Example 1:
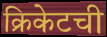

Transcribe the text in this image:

क्रिकेटची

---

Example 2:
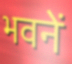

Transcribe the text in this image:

भवनें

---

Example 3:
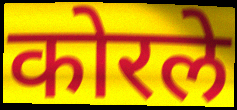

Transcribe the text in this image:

कोरले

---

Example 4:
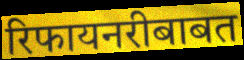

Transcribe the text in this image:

रिफायनरीबाबत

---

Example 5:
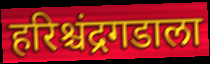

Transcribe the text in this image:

हरिश्चंद्रगडाला